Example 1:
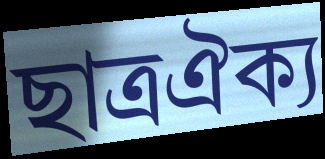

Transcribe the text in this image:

ছাত্রঐক্য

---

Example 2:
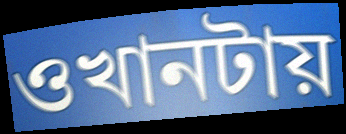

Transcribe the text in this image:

ওখানটায়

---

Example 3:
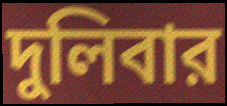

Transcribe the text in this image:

দুলিবার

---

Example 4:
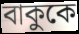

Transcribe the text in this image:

বাকুকে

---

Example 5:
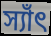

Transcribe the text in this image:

স্যাঁৎ